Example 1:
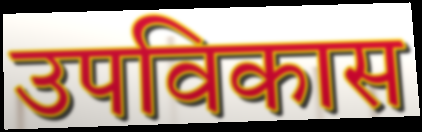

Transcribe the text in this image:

उपविकास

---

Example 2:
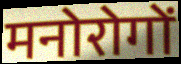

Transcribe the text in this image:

मनोरोगों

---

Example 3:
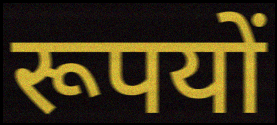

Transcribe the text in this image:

रूपयों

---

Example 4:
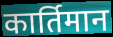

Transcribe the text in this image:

कार्तिमान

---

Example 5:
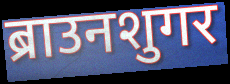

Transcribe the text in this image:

ब्राउनशुगर